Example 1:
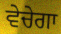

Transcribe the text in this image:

ਵੇਚੇਗਾ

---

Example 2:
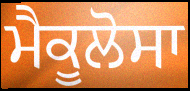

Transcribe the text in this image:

ਮੈਕੂਲੋਸਾ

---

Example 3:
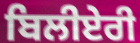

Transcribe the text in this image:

ਬਿਲੀਏਰੀ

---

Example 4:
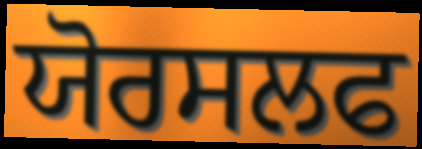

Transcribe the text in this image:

ਯੋਰਸਲਫ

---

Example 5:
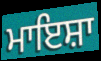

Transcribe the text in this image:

ਮਾਇਸ਼ਾ